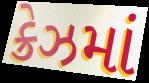
ક્રેઝમાં